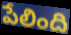
పేలింది